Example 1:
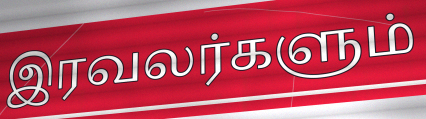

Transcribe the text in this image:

இரவலர்களும்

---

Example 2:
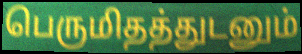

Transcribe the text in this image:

பெருமிதத்துடனும்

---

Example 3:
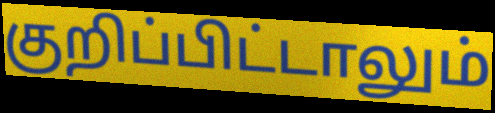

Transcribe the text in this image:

குறிப்பிட்டாலும்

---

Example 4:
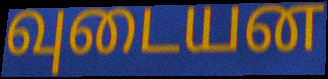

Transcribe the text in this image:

வுடையன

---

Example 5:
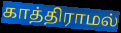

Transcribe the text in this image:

காத்திராமல்